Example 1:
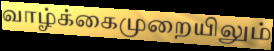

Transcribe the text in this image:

வாழ்க்கைமுறையிலும்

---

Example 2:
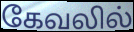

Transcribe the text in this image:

கேவலில்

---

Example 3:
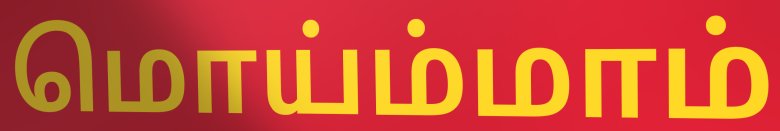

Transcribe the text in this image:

மொய்ம்மாம்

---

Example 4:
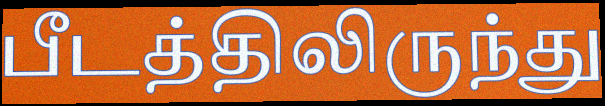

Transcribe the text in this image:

பீடத்திலிருந்து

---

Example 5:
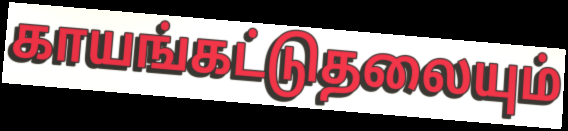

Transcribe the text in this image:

காயங்கட்டுதலையும்